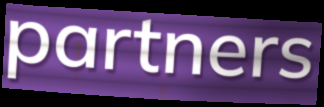
partners